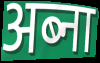
अब्ना